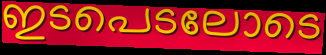
ഇടപെടലോടെ